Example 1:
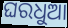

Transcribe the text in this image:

ଘରଧୁଆ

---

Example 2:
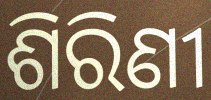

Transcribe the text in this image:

ଶିରିଣୀ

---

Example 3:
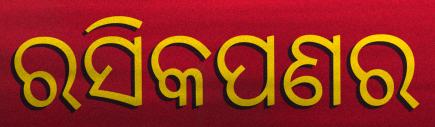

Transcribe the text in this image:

ରସିକପଣର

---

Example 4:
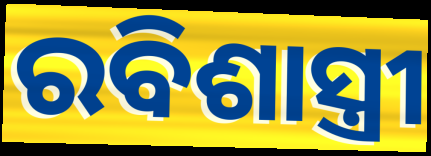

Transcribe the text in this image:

ରବିଶାସ୍ତ୍ରୀ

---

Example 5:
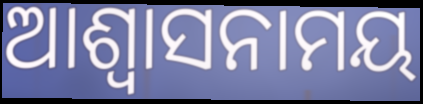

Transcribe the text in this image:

ଆଶ୍ୱାସନାମୟ